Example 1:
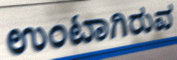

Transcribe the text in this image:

ಉಂಟಾಗಿರುವ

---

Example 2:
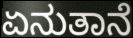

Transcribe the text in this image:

ಏನುತಾನೆ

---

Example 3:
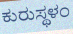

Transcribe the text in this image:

ಕುರುಸ್ಥಳಂ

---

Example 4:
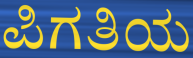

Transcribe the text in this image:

ಪಿಗತಿಯ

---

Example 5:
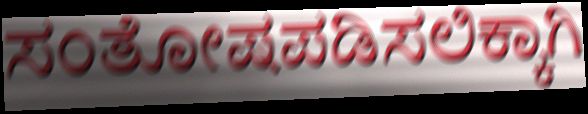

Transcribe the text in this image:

ಸಂತೋಷಪಡಿಸಲಿಕ್ಕಾಗಿ